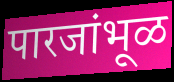
पारजांभूळ